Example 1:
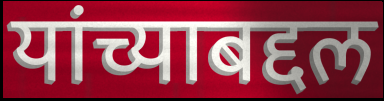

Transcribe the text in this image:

यांच्याबद्दल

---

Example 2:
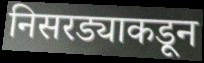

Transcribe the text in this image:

निसरड्याकडून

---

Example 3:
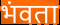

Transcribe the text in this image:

भंवता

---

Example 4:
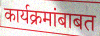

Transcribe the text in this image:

कार्यक्रमांबाबत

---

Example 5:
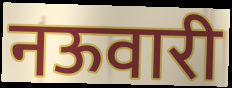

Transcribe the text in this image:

नऊवारी